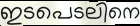
ഇടപെടലിനെ